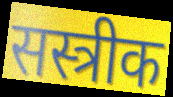
सस्त्रीक